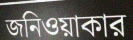
জনিওয়াকার